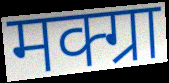
मक्ग्रा